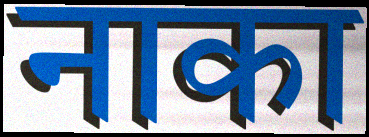
नाका